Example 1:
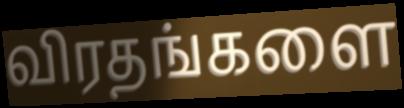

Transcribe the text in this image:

விரதங்களை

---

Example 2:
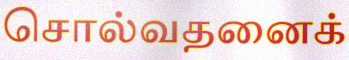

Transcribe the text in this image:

சொல்வதனைக்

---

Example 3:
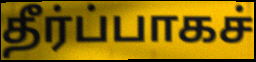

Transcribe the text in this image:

தீர்ப்பாகச்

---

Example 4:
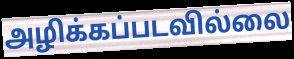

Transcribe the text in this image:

அழிக்கப்படவில்லை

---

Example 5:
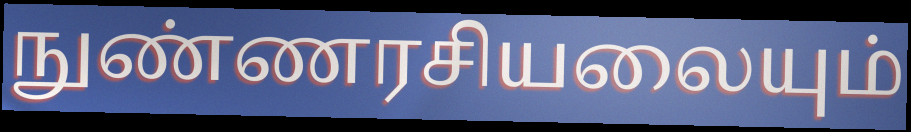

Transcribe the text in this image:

நுண்ணரசியலையும்